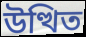
উত্থিত